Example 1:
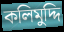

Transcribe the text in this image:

কলিমুদ্দি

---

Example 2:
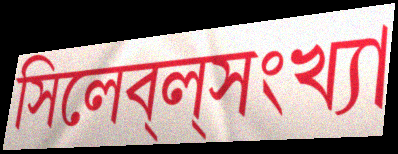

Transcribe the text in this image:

সিলেব্‌ল্‌সংখ্যা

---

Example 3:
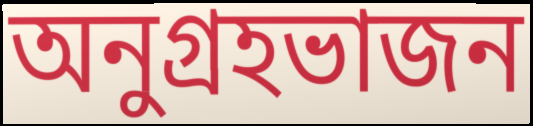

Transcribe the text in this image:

অনুগ্রহভাজন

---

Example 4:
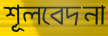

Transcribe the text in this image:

শূলবেদনা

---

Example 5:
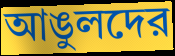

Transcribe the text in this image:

আঙুলদের